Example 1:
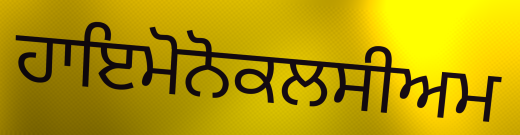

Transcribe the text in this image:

ਹਾਇਮੋਨੋਕਲਸੀਅਮ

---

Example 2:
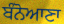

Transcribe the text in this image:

ਬੰਨੋਆਣਾ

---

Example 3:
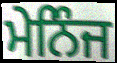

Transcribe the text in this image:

ਮੇਨਿੰਜ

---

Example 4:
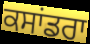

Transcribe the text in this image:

ਕਸਾਂਡਰਾ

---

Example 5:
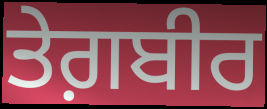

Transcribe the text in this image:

ਤੇਗ਼ਬੀਰ